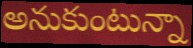
అనుకుంటున్నా